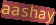
aashay